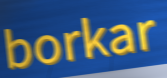
borkar